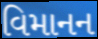
વિમાનન